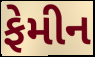
ફેમીન